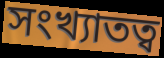
সংখ্যাতত্ব